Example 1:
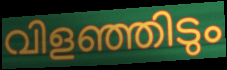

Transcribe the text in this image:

വിളഞ്ഞിടും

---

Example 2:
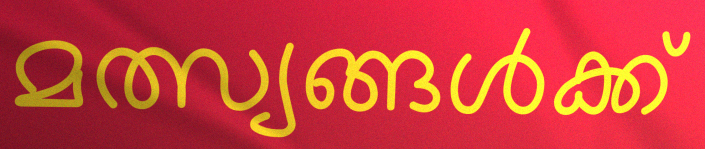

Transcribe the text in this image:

മത്സ്യങ്ങൾക്ക്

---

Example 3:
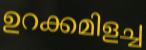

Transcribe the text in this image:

ഉറക്കമിളച്ച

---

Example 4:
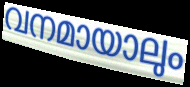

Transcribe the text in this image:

വനമായാലും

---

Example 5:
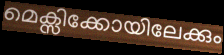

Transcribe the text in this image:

മെക്സിക്കോയിലേക്കും